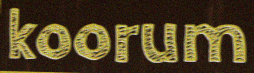
koorum